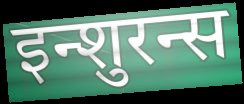
इन्शुरन्स